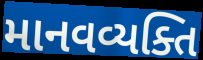
માનવવ્યક્તિ